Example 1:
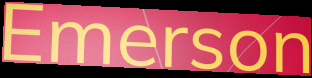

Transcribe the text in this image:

Emerson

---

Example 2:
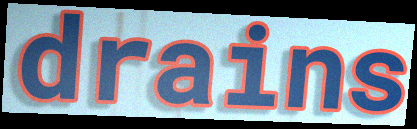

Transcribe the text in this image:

drains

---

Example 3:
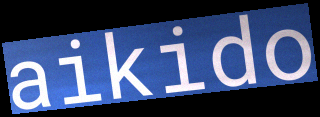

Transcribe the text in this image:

aikido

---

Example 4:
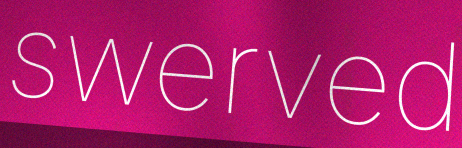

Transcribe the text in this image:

swerved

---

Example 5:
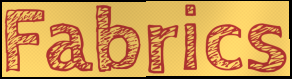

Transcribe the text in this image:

Fabrics